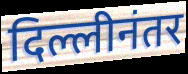
दिल्लीनंतर